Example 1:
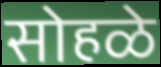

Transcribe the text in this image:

सोहळे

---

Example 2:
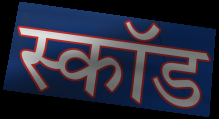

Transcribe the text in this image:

स्कॉड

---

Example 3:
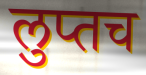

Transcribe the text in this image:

लुप्तच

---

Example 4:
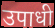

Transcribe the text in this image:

उपाधी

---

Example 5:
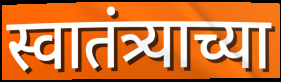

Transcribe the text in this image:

स्वातंत्र्याच्या